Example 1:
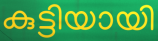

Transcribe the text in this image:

കുട്ടിയായി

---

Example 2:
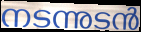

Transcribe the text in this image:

നടന്നുടൻ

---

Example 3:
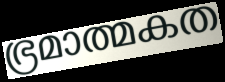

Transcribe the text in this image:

ഭ്രമാത്മകത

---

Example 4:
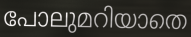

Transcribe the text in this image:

പോലുമറിയാതെ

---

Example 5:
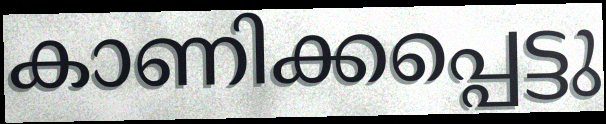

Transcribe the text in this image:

കാണിക്കപ്പെട്ടു